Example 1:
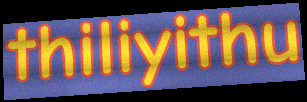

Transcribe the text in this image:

thiliyithu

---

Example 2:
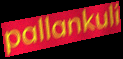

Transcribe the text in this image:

pallankuli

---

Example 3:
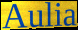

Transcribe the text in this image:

Aulia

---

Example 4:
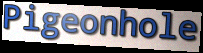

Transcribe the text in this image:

Pigeonhole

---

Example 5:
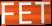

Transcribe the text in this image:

FET